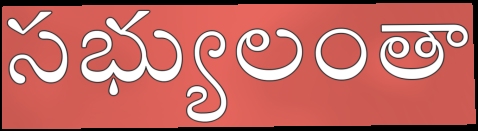
సభ్యులంతా